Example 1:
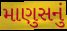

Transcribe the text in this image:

માણુસનું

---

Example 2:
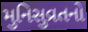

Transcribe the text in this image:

મુનિસુવ્રતનો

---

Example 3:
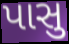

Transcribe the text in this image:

પાસુ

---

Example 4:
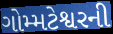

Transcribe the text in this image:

ગોમ્મટેશ્વરની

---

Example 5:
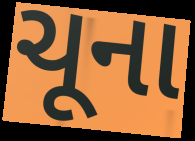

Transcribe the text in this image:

ચૂના